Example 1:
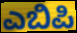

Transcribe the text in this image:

ಎಬಿಪಿ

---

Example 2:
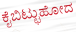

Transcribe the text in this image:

ಕೈಬಿಟ್ಟುಹೋದ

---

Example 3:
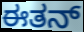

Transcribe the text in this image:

ಈತನ್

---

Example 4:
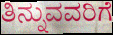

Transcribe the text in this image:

ತಿನ್ನುವವರಿಗೆ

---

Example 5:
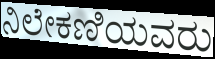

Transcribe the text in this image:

ನಿಲೇಕಣಿಯವರು